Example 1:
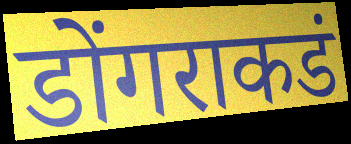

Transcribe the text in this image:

डोंगराकडं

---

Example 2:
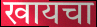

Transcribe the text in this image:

खायचा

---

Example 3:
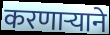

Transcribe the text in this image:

करणाऱ्याने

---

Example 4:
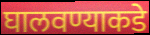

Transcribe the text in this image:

घालवण्याकडे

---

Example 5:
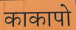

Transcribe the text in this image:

काकापो